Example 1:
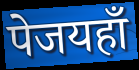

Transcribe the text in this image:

पेजयहाँ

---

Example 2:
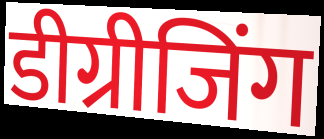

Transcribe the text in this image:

डीग्रीजिंग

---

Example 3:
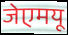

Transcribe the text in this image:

जेएमयू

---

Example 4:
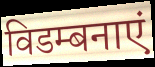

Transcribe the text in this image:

विडम्बनाएं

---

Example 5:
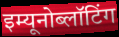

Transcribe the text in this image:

इम्यूनोब्लॉटिंग